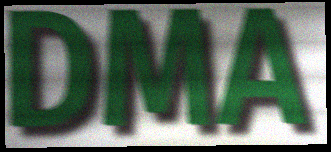
DMA